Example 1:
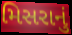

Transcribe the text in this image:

મિસરાનું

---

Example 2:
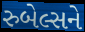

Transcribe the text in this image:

રુબેલ્સને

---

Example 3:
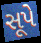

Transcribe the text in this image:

સૂપે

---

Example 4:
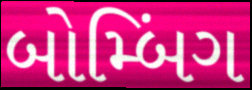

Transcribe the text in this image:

બોમ્બિંગ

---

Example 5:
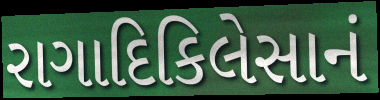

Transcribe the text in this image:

રાગાદિકિલેસાનં